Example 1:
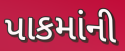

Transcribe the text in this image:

પાકમાંની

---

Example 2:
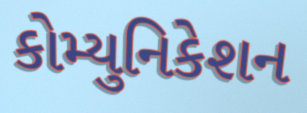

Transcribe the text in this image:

કોમ્યુનિકેશન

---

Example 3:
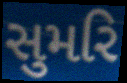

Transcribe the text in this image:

સુમરિ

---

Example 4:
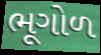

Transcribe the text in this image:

ભૂગોળ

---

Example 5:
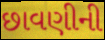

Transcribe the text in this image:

છાવણીની